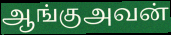
ஆங்குஅவன்